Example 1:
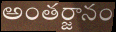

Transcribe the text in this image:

అంతర్జానం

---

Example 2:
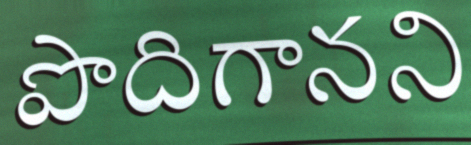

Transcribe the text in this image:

పొదిగానని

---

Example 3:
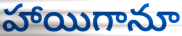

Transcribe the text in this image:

హాయిగానూ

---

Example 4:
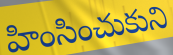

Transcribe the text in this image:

హింసించుకుని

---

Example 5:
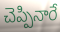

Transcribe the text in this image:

చెప్పినారే